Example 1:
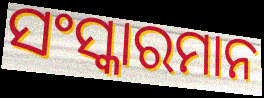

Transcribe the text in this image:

ସଂସ୍କାରମାନ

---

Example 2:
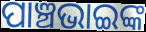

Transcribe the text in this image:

ପାଞ୍ଚଭାଇଙ୍କ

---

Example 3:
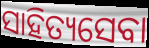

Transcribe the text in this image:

ସାହିତ୍ୟସେବା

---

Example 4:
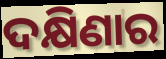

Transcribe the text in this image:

ଦକ୍ଷିଣାର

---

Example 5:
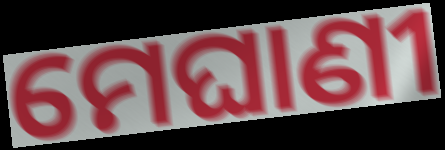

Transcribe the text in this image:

ମେଘାଣୀ